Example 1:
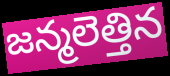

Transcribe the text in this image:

జన్మలెత్తిన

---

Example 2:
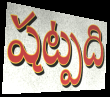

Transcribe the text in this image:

షట్పది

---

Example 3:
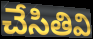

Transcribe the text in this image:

చేసితివి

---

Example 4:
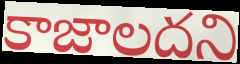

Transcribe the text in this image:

కాజాలదని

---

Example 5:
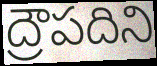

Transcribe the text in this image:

ద్రౌపదిని